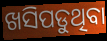
ଖସିପଡୁଥିବା